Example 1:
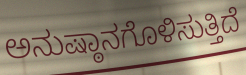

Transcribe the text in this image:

ಅನುಷ್ಠಾನಗೊಳಿಸುತ್ತಿದೆ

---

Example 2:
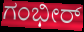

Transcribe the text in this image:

ಗಂಭೀರ್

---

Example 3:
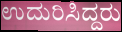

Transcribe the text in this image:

ಉದುರಿಸಿದ್ದರು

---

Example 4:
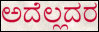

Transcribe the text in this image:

ಅದೆಲ್ಲದರ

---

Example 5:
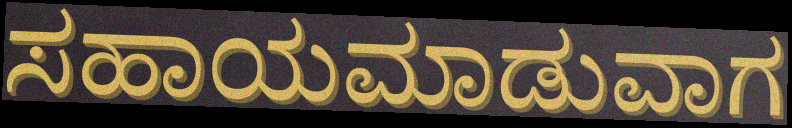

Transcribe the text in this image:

ಸಹಾಯಮಾಡುವಾಗ